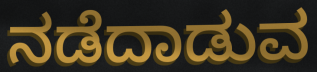
ನಡೆದಾಡುವ